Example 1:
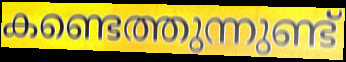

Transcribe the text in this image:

കണ്ടെത്തുന്നുണ്ട്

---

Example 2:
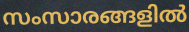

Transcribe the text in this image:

സംസാരങ്ങളിൽ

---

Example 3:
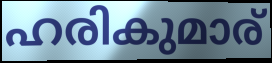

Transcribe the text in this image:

ഹരികുമാര്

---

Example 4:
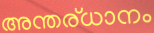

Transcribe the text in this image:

അന്തര്ധാനം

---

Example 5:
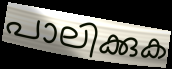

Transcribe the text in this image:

പാലിക്കുക